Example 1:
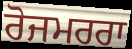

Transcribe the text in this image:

ਰੋਜਮਰਰਾ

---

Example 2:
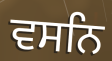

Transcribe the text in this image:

ਵਸਨਿ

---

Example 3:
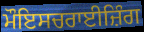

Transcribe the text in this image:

ਮੌਇਸਚਰਾਈਜ਼ਿੰਗ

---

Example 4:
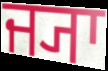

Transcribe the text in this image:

ਜ੍ਯਾ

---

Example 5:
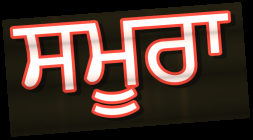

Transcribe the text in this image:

ਸਮੂਰਾ